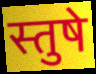
स्तुषे